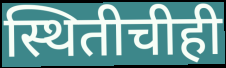
स्थितीचीही